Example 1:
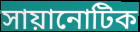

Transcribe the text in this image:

সায়ানোটিক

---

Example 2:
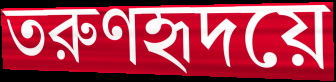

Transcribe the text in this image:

তরুণহৃদয়ে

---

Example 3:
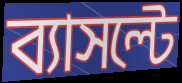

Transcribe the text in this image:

ব্যাসল্টে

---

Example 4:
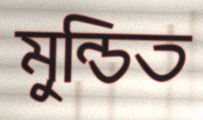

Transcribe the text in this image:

মুন্ডিত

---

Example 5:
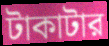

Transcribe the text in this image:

টাকাটার